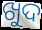
ଖୁଦ